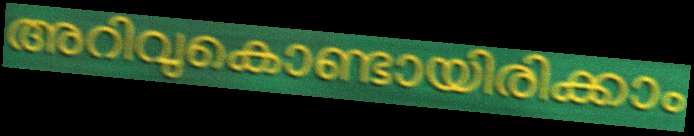
അറിവുകൊണ്ടായിരിക്കാം